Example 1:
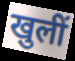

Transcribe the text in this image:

खुलीं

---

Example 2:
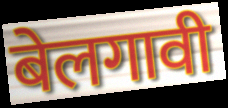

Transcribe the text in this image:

बेलगावी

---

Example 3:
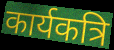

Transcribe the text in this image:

कार्यकत्रि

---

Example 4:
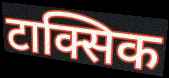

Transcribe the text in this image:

टाक्सिक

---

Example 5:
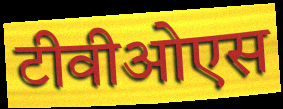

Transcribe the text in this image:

टीवीओएस